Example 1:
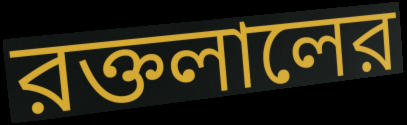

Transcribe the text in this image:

রক্তলালের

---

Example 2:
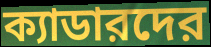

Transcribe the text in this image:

ক্যাডারদের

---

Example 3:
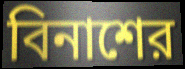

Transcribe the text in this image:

বিনাশের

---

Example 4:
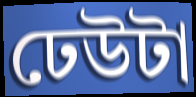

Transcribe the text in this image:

ঢেউটা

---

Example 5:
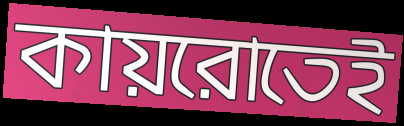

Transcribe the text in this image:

কায়রোতেই